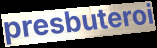
presbuteroi